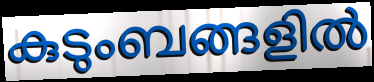
കുടുംബങ്ങളിൽ